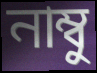
নাম্বু